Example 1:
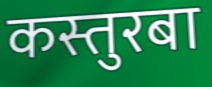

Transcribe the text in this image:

कस्तुरबा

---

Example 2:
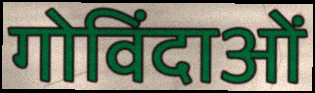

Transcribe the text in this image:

गोविंदाओं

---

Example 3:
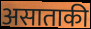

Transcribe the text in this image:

असाताकी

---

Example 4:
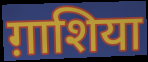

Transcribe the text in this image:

ग़ाशिया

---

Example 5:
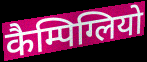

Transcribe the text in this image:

कैम्पिग्लियो